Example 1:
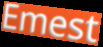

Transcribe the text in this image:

Emest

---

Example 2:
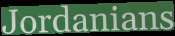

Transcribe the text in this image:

Jordanians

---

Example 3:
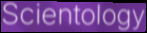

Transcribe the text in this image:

Scientology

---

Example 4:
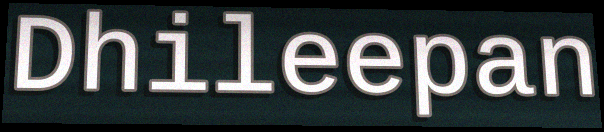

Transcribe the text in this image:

Dhileepan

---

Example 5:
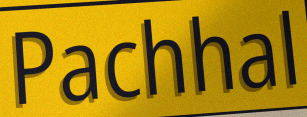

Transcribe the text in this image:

Pachhal